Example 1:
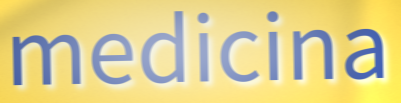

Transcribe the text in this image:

medicina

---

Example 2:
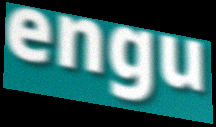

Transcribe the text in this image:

engu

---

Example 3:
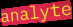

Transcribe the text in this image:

analyte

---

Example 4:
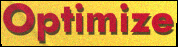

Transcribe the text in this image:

Optimize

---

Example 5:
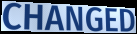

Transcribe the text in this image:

CHANGED